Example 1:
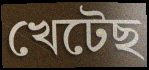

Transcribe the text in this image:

খেটেছ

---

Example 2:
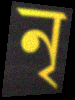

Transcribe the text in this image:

নৃ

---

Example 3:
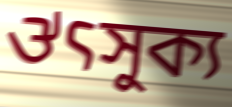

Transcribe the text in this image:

ঔৎসুক্য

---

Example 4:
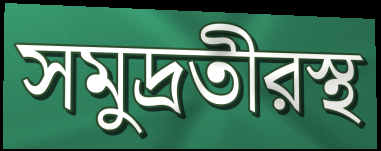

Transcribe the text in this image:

সমুদ্রতীরস্থ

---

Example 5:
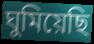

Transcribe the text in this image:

ঘুমিয়েছি